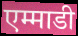
एम्माडी